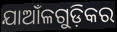
ଯାଆଁଳଗୁଡ଼ିକର